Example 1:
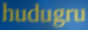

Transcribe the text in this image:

hudugru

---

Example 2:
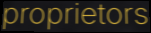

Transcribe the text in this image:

proprietors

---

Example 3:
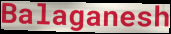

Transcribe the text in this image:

Balaganesh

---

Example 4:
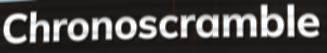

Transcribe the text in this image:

Chronoscramble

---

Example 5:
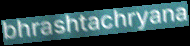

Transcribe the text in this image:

bhrashtachryana